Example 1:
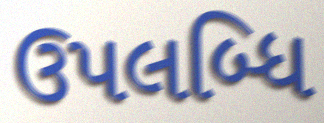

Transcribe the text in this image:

ઉપલબ્ધિ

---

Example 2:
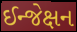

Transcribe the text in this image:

ઈન્જેક્ષન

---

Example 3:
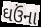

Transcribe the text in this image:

ઘઉંના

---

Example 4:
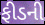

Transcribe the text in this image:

ફીડની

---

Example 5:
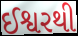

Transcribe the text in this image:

ઈશ્વરથી